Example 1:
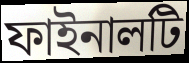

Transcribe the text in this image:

ফাইনালটি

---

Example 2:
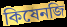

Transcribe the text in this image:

কিষেনজি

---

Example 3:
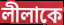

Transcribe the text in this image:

লীলাকে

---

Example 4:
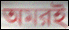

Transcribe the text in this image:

অমরই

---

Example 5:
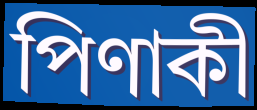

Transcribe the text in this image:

পিণাকী